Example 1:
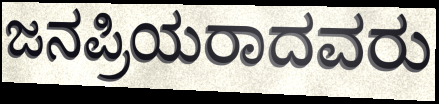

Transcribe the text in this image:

ಜನಪ್ರಿಯರಾದವರು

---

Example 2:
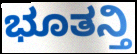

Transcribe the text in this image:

ಭೂತನ್ತಿ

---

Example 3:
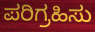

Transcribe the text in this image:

ಪರಿಗ್ರಹಿಸು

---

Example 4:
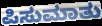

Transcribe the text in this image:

ಪಿಸುಮಾತು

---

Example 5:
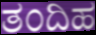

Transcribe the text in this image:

ತಂದಿಹ